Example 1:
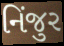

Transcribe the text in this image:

નિંજુર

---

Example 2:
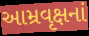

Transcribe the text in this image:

આમ્રવૃક્ષનાં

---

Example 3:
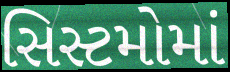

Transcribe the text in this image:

સિસ્ટમોમાં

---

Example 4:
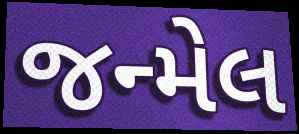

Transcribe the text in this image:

જન્મેલ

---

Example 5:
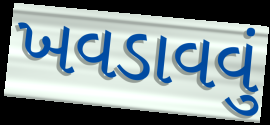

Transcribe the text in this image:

ખવડાવવું